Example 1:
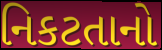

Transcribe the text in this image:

નિકટતાનો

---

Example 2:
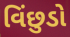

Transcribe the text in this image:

વિંછુડો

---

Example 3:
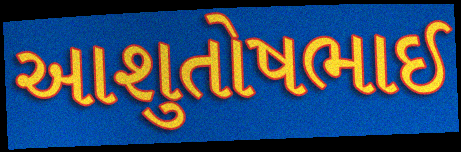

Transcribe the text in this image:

આશુતોષભાઈ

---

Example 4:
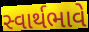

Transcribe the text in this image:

સ્વાર્થભાવે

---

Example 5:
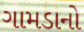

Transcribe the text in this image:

ગામડાનો